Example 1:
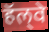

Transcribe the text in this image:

हॅल्वे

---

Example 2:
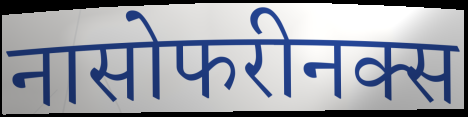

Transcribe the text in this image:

नासोफरीनक्स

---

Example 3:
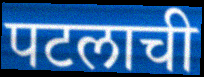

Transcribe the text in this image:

पटलाची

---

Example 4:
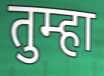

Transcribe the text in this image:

तुम्हा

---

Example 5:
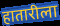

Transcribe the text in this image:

हातारीला